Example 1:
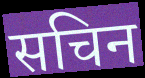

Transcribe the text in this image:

सचिन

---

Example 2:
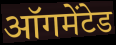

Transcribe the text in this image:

ऑगमेंटेड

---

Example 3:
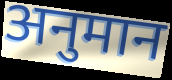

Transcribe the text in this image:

अनुमान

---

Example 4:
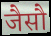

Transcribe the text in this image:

जैसौ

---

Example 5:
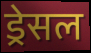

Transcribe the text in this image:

ड्रेसल